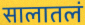
सालातलं